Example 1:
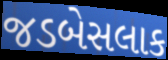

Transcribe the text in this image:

જડબેસલાક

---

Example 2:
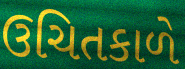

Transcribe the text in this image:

ઉચિતકાળે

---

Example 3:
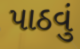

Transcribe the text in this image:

પાઠવું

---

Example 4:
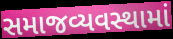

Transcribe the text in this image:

સમાજવ્યવસ્થામાં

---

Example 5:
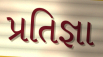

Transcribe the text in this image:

પ્રતિજ્ઞા